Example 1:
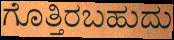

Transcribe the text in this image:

ಗೊತ್ತಿರಬಹುದು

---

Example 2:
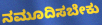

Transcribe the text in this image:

ನಮೂದಿಸಬೇಕು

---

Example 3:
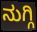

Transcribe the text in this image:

ನುಗ್ಗಿ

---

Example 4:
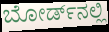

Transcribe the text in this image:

ಬೋರ್ಡ್‌ನಲ್ಲಿ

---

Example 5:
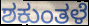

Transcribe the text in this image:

ಶಕುಂತಳೆ